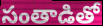
సంతాడితో